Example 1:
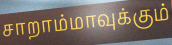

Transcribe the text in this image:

சாறாம்மாவுக்கும்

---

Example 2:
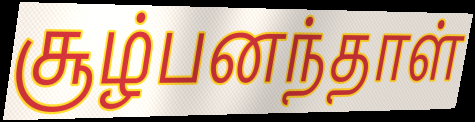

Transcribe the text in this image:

சூழ்பனந்தாள்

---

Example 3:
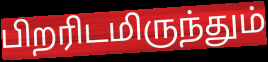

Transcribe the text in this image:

பிறரிடமிருந்தும்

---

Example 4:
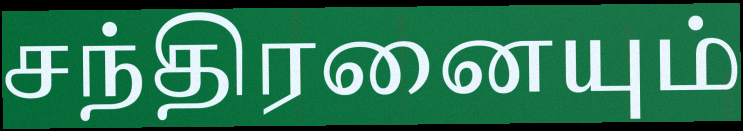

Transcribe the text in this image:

சந்திரனையும்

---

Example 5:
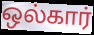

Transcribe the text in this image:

ஒல்கார்